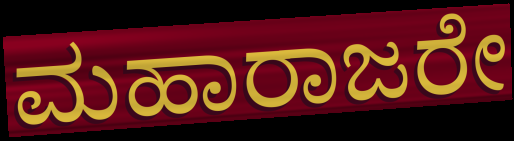
ಮಹಾರಾಜರೇ